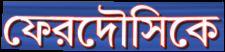
ফেরদৌসিকে